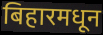
बिहारमधून